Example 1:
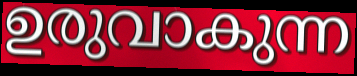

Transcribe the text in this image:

ഉരുവാകുന്ന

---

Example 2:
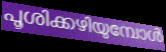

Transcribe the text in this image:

പൂശിക്കഴിയുമ്പോൾ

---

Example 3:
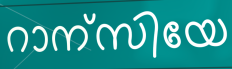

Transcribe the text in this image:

റാന്സിയേ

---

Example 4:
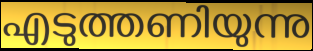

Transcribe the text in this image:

എടുത്തണിയുന്നു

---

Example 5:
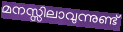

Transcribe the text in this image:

മനസ്സിലാവുന്നുണ്ട്